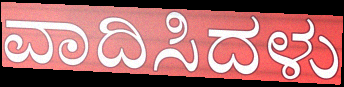
ವಾದಿಸಿದಳು